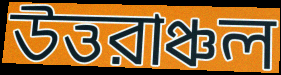
উত্তরাঞ্চল